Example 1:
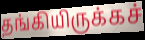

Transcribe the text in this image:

தங்கியிருக்கச்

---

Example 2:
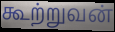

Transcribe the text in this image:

கூற்றுவன்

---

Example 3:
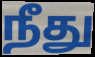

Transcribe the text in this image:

நீது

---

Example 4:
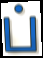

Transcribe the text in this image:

ப்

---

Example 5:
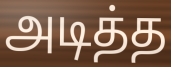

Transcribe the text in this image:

அடித்த